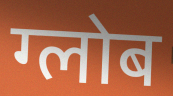
ग्लोब